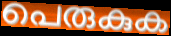
പെരുകുക